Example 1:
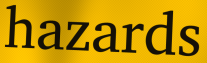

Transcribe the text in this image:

hazards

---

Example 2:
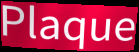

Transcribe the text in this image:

Plaque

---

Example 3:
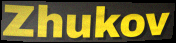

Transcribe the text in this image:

Zhukov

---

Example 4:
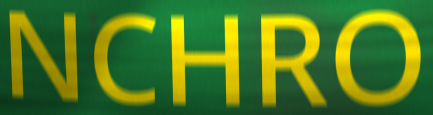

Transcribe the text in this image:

NCHRO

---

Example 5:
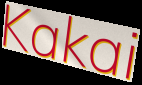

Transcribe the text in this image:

Kakai